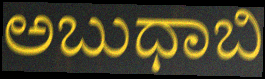
ಅಬುಧಾಬಿ